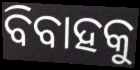
ବିବାହକୁ